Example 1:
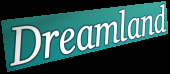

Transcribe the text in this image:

Dreamland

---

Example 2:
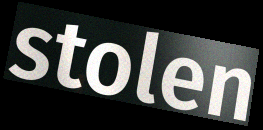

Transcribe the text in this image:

stolen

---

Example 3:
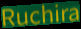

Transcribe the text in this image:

Ruchira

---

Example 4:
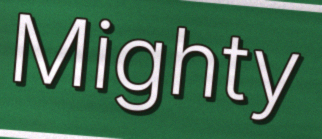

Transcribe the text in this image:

Mighty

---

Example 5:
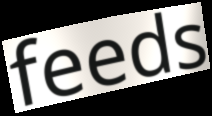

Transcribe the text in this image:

feeds